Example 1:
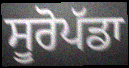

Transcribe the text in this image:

ਸੂਰੋਪੱਡਾ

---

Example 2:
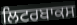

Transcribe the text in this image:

ਲਿਟਰਬਾਕਸ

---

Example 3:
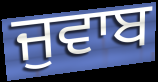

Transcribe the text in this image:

ਜੁਵਾਬ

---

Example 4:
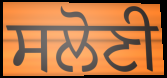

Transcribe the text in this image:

ਸਲੋਣੀ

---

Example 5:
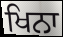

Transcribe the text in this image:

ਖਿਨਾ